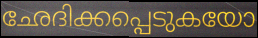
ഛേദിക്കപ്പെടുകയോ